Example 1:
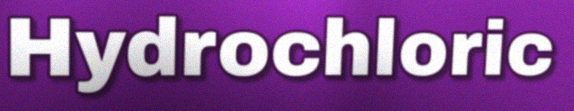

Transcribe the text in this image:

Hydrochloric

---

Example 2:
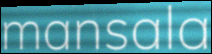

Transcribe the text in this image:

mansala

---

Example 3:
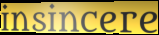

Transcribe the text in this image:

insincere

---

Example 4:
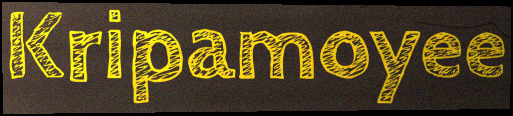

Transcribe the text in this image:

Kripamoyee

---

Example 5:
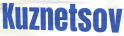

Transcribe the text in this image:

Kuznetsov